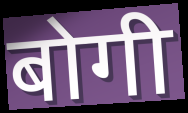
बोगी